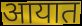
आयात